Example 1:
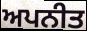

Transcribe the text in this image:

ਅਪਨੀਤ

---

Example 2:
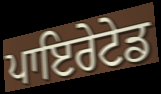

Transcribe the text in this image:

ਪਾਇਰੇਟੇਡ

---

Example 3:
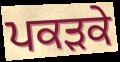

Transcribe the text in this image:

ਪਕੜਕੇ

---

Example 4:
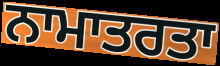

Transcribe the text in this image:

ਨਾਮਾਤਰਤਾ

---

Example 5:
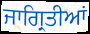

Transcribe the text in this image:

ਜਾਗ੍ਰਿਤੀਆਂ